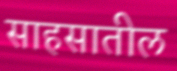
साहसातील